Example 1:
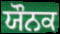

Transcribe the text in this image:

ਯੌਨਕ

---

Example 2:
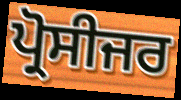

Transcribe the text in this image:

ਪ੍ਰੋਸੀਜਰ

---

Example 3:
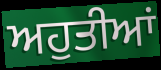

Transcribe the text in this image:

ਅਹੁਤੀਆਂ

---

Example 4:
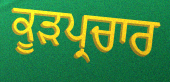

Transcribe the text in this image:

ਕੂੜਪ੍ਰਚਾਰ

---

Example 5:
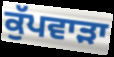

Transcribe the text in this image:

ਕੁੱਪਵਾੜਾ